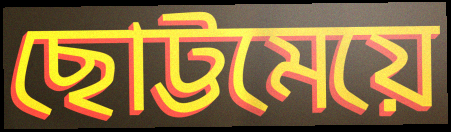
ছোট্টমেয়ে